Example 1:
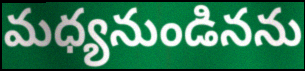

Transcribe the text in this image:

మధ్యనుండినను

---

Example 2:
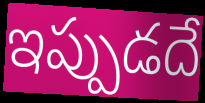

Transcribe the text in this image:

ఇప్పుడదే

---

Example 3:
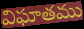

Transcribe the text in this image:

విఘాతము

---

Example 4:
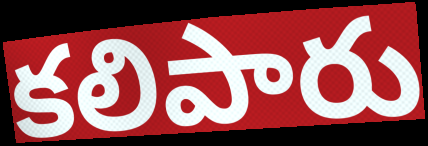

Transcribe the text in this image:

కలిపారు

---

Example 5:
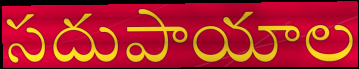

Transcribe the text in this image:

సదుపాయాల